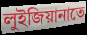
লুইজিয়ানাতে